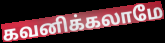
கவனிக்கலாமே